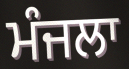
ਮੰਜਲਾ